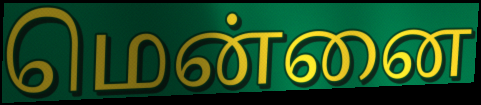
மென்னை